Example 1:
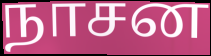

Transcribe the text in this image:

நாசன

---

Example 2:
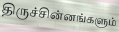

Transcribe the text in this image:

திருச்சின்னங்களும்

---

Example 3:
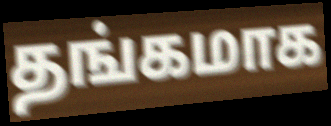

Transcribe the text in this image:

தங்கமாக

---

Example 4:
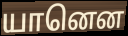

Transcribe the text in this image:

யானென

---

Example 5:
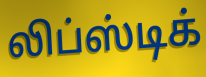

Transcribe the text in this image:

லிப்ஸ்டிக்